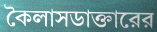
কৈলাসডাক্তারের